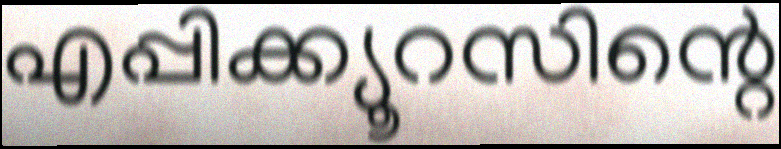
എപ്പിക്ക്യൂറസിന്റെ